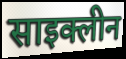
साइक्लीन